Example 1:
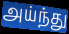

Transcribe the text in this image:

அய்ந்து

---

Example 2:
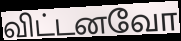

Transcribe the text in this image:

விட்டனவோ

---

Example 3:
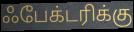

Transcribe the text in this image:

ஃபேக்டரிக்கு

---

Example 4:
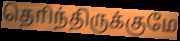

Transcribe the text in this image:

தெரிந்திருக்குமே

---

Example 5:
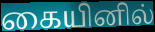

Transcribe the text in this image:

கையினில்